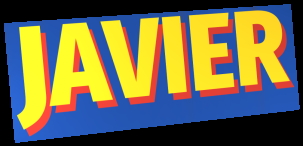
JAVIER